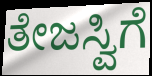
ತೇಜಸ್ವಿಗೆ